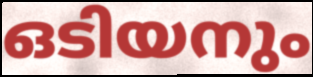
ഒടിയനും